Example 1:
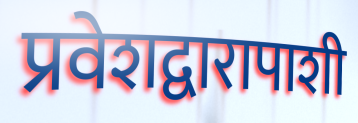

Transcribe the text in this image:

प्रवेशद्वारापाशी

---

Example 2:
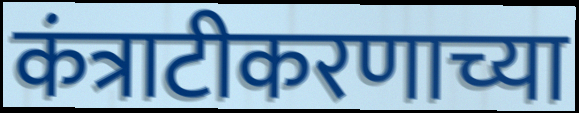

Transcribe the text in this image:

कंत्राटीकरणाच्या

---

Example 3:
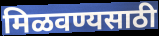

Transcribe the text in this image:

मिळवण्यसाठी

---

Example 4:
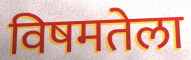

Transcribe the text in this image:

विषमतेला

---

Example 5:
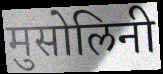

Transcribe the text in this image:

मुसोलिनी